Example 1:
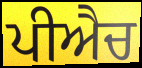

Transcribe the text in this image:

ਪੀਐਚ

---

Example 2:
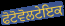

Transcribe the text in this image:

ਫੋਟੋਵੋਲਟੇਇਕ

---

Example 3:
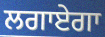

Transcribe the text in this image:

ਲਗਾਏਗਾ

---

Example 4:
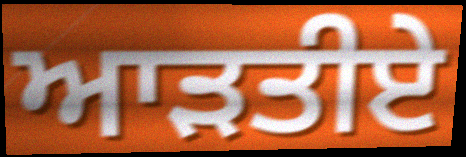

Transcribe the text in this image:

ਆੜਤੀਏ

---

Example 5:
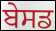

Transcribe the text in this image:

ਬੇਸਡ